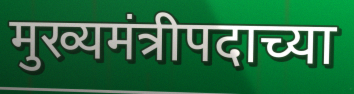
मुख्यमंत्रीपदाच्या